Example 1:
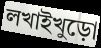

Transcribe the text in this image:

লখাইখুড়ো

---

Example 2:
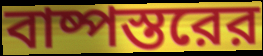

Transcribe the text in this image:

বাষ্পস্তরের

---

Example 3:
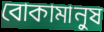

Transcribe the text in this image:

বোকামানুষ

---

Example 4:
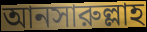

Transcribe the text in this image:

আনসারুল্লাহ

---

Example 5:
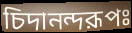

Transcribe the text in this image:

চিদানন্দরূপঃ